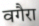
वगैरा